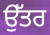
ਉੱਤਰ